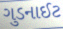
ગુડનાઈટ